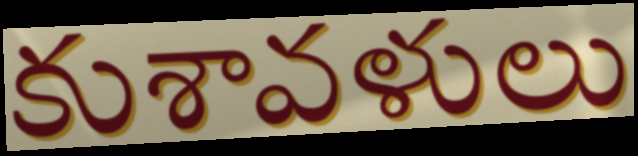
కుశావళులు